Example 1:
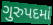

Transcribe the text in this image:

ગુરુપદમાં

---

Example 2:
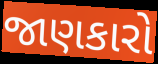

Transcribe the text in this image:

જાણકારો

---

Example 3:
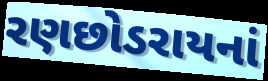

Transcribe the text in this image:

રણછોડરાયનાં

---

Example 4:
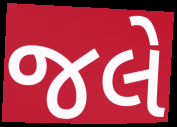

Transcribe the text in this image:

જલે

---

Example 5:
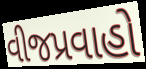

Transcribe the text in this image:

વીજપ્રવાહો